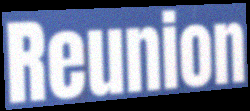
Reunion